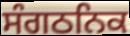
ਸੰਗਠਨਿਕ